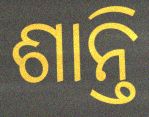
ଶାନ୍ତି